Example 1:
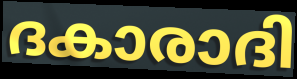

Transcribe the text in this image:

ദകാരാദി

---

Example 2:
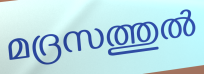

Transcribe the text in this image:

മദ്രസത്തുൽ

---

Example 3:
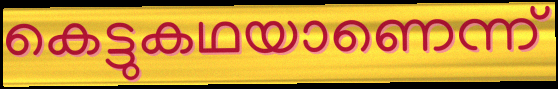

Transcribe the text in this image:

കെട്ടുകഥയാണെന്ന്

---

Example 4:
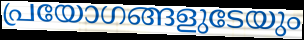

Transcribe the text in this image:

പ്രയോഗങ്ങളുടേയും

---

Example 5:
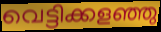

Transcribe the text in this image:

വെട്ടിക്കളഞ്ഞു